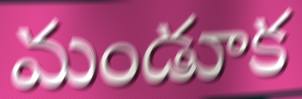
మండూక